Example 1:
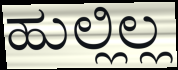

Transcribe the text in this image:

ಹುಲ್ಲಿಲ್ಲ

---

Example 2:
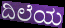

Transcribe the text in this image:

ದಿಲೆಯ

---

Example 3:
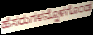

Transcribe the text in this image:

ಹೆಸರುಗಳನ್ನೊಳಗೊಂಡ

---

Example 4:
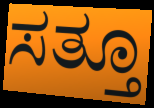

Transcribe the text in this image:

ಸತ್ತೂ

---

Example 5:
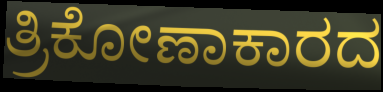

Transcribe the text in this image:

ತ್ರಿಕೋಣಾಕಾರದ